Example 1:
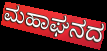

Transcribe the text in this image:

ಮಹಾಘನದ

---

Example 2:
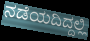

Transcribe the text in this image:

ನಡೆಯದಿದ್ದಲ್ಲಿ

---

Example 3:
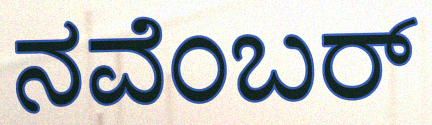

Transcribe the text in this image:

ನವೆಂಬರ್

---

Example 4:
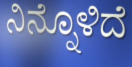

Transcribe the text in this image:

ನಿನ್ನೊಳಿದೆ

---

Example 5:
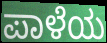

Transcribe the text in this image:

ಪಾಳೆಯ